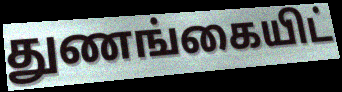
துணங்கையிட்